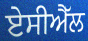
ਏਸੀਐੱਲ